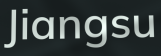
Jiangsu